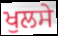
ਖੁਲਸੇ